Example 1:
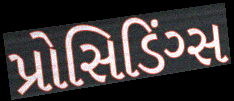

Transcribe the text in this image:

પ્રોસિડિંગ્સ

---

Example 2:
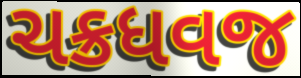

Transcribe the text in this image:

ચક્રધવજ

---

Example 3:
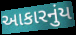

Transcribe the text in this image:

આકારનુંય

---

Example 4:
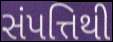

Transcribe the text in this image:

સંપત્તિથી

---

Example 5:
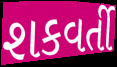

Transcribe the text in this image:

શકવર્તી